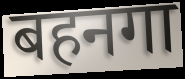
बहनगा